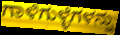
ಗಾಳಿಗುಳ್ಳೆಗಳನ್ನು